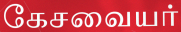
கேசவையர்